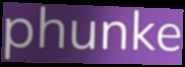
phunke